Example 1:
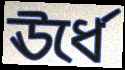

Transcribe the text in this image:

ঊর্ধে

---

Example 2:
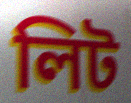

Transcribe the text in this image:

লিট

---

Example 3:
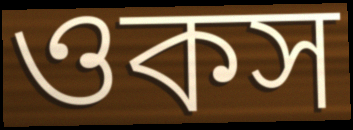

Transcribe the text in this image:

ওকস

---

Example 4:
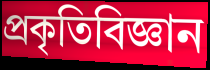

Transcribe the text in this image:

প্রকৃতিবিজ্ঞান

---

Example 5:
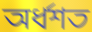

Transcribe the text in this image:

অর্ধশত